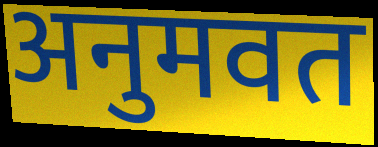
अनुमवत